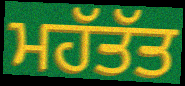
ਮਹੱਤੱਤ